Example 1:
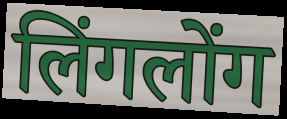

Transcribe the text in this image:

लिंगलोंग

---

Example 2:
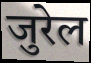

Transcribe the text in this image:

जुरेल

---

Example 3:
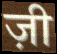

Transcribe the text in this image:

ज़ी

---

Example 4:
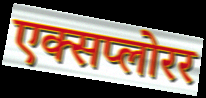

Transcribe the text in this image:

एक्सप्लोरर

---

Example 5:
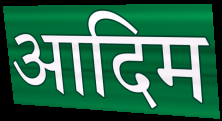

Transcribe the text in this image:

आदिम